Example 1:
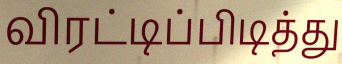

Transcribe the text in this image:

விரட்டிப்பிடித்து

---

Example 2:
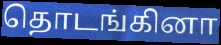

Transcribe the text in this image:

தொடங்கினா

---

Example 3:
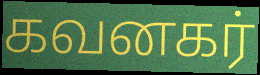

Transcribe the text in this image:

கவனகர்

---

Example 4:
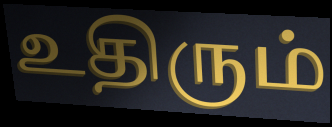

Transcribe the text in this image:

உதிரும்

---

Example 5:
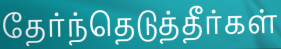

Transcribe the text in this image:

தேர்ந்தெடுத்தீர்கள்